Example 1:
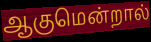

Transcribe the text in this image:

ஆகுமென்றால்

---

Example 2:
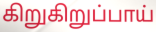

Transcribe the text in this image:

கிறுகிறுப்பாய்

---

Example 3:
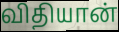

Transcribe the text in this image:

விதியான்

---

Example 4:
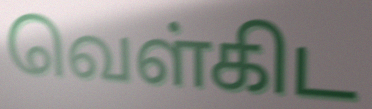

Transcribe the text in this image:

வெள்கிட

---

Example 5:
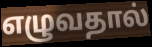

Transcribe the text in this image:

எழுவதால்